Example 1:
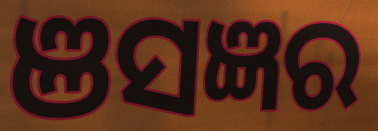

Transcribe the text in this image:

ଞସଜ୍ଞର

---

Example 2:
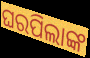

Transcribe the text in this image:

ଘରପିଲାଙ୍କ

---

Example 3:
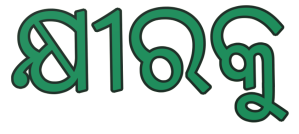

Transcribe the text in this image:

କ୍ଷୀରକୁ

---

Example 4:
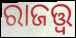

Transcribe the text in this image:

ରାଜତ୍ତ୍ୱ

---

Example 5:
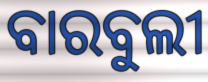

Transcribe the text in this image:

ବାରବୁଲୀ